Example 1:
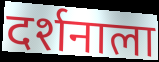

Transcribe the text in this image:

दर्शनाला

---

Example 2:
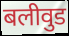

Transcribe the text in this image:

बलीवुड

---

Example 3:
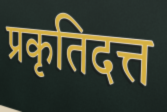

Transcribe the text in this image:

प्रकृतिदत्त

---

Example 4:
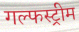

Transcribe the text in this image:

गल्फस्ट्रीम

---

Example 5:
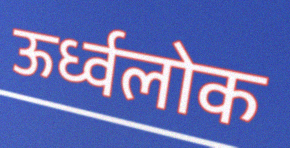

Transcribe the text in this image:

ऊर्ध्वलोक